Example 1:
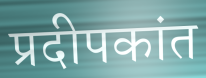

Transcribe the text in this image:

प्रदीपकांत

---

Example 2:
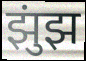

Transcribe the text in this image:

झुंझ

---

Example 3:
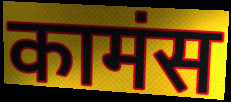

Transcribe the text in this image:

कामंस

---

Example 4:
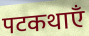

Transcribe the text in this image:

पटकथाएँ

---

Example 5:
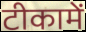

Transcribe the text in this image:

टीकामें